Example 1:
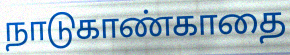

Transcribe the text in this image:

நாடுகாண்காதை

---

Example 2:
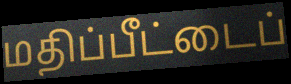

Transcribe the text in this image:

மதிப்பீட்டைப்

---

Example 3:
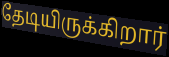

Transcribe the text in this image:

தேடியிருக்கிறார்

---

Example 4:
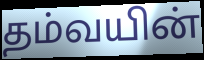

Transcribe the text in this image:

தம்வயின்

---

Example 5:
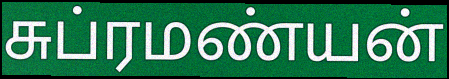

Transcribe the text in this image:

சுப்ரமண்யன்